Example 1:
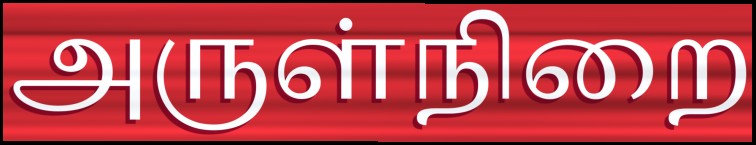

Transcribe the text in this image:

அருள்நிறை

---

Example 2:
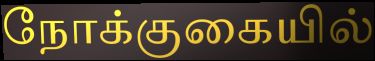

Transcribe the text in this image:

நோக்குகையில்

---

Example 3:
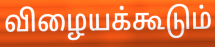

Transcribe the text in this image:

விழையக்கூடும்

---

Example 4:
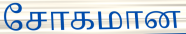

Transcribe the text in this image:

சோகமான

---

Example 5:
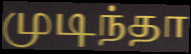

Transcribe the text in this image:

முடிந்தா